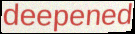
deepened